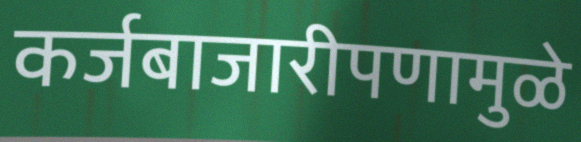
कर्जबाजारीपणामुळे